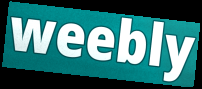
weebly